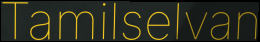
Tamilselvan